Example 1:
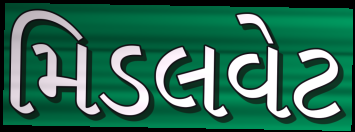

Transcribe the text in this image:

મિડલવેટ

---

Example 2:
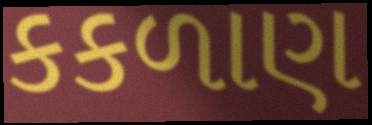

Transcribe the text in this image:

કકળાણ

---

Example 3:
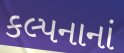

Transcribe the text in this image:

કલ્પનાનાં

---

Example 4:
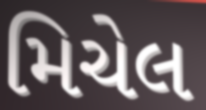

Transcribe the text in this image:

મિચેલ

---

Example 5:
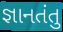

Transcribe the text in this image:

જ્ઞાનતંતુ